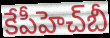
కేపీహెచ్‌బీ